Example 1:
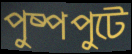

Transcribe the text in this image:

পুষ্পপুটে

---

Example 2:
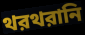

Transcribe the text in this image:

থরথরানি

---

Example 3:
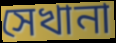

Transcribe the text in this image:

সেখানা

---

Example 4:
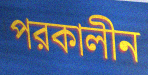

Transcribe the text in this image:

পরকালীন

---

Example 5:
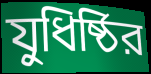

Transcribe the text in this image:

যুধিষ্ঠির